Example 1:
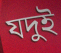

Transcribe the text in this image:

যদুই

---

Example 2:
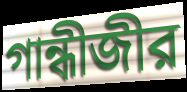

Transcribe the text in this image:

গান্ধীজীর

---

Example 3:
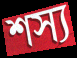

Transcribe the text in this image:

শস্য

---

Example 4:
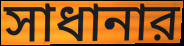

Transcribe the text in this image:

সাধানার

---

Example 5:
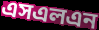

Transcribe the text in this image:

এসএলএন